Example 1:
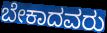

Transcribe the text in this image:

ಬೇಕಾದವರು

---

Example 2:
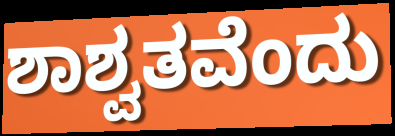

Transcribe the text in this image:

ಶಾಶ್ವತವೆಂದು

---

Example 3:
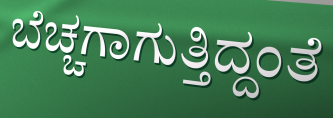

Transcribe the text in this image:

ಬೆಚ್ಚಗಾಗುತ್ತಿದ್ದಂತೆ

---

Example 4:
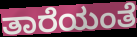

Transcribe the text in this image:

ತಾರೆಯಂತೆ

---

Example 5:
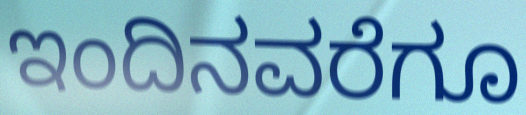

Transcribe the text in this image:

ಇಂದಿನವರೆಗೂ